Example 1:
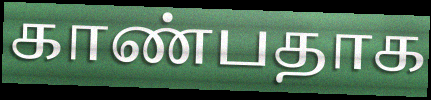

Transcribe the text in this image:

காண்பதாக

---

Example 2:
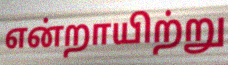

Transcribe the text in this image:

என்றாயிற்று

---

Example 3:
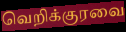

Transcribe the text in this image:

வெறிக்குரவை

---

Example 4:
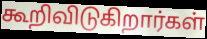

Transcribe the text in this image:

கூறிவிடுகிறார்கள்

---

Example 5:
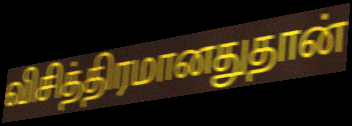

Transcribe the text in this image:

விசித்திரமானதுதான்